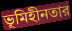
ভূমিহীনতার